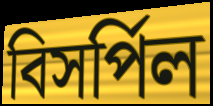
বিসর্পিল